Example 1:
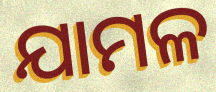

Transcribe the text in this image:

ଯାମଳ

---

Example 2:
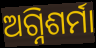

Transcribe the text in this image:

ଅଗ୍ନିଶର୍ମା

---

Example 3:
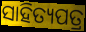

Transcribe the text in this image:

ସାହିତ୍ୟପତ୍ର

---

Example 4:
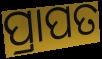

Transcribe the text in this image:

ପ୍ରାପତ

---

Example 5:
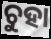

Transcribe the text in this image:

ଚୁହା